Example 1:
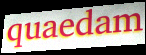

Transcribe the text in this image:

quaedam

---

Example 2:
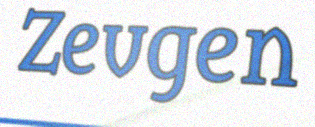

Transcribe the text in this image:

Zeugen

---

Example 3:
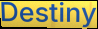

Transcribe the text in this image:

Destiny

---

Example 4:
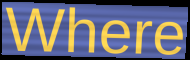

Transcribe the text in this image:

Where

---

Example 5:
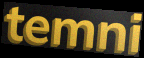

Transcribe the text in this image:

temni